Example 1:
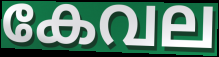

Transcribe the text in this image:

കേവല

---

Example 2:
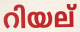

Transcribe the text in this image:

റിയല്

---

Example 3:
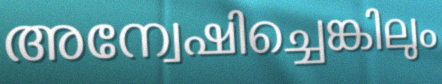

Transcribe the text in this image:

അന്വേഷിച്ചെങ്കിലും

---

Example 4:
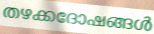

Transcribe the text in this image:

തഴക്കദോഷങ്ങൾ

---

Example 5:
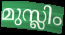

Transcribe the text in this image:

മുസ്ലിം